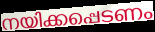
നയിക്കപ്പെടണം